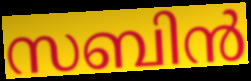
സബിൻ